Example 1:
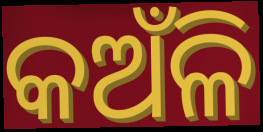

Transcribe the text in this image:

କଅଁଳି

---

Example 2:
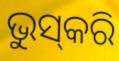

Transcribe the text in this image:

ଭୁସ୍‌କରି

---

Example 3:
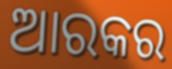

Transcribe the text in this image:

ଆରକର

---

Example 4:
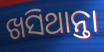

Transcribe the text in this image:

ଖସିଥାନ୍ତା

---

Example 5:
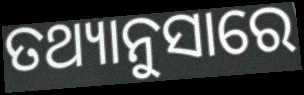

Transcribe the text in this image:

ତଥ୍ୟାନୁସାରେ